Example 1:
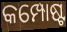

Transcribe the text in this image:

କମ୍ପୋଷ୍ଟ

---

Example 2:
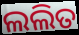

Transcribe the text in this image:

ଲଲିତ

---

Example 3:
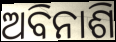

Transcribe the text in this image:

ଅବିନାଶି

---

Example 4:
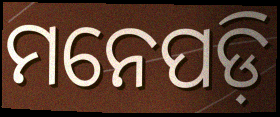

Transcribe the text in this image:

ମନେପଡ଼ି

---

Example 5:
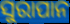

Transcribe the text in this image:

ସୁରାପାନ